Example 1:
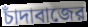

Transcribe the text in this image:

চাঁদাবাজের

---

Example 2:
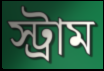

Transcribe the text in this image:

স্ট্রাম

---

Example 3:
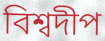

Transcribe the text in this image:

বিশ্বদীপ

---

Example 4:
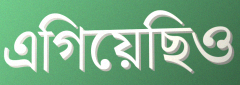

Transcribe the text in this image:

এগিয়েছিও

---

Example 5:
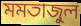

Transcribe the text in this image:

মমতাজুল